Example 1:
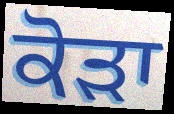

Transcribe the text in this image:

ਕੋੜਾ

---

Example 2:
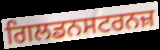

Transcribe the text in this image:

ਗਿਲਡਨਸਟਰਨਜ਼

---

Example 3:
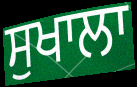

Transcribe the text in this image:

ਸੁਖਾਲਾ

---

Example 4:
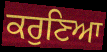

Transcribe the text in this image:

ਕਰੁਣਿਆ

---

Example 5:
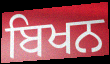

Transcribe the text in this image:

ਬਿਖਨ